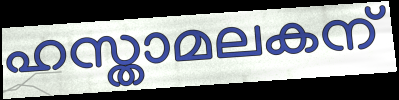
ഹസ്താമലകന്